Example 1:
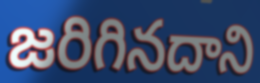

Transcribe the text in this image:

జరిగినదాని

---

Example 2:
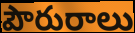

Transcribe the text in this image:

పౌరురాలు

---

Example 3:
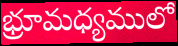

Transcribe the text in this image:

భ్రూమధ్యములో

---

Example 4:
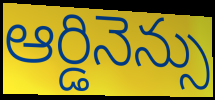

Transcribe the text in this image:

ఆర్డినెన్సు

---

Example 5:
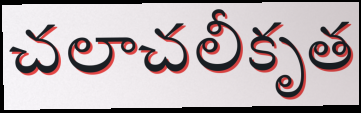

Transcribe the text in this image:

చలాచలీకృత